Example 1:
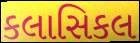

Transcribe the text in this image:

કલાસિકલ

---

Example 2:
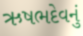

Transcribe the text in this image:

ઋષભદેવનું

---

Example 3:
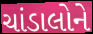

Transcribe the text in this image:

ચાંડાલોને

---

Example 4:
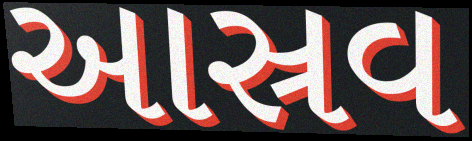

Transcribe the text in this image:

આસ્રવ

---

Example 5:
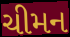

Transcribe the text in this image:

ચીમન